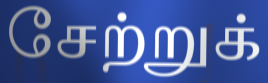
சேற்றுக்